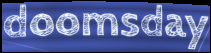
doomsday